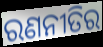
ରଣନୀତିର